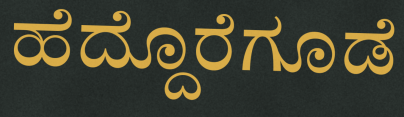
ಹೆದ್ದೊರೆಗೂಡೆ